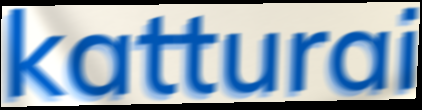
katturai